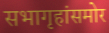
सभागृहांसमोर